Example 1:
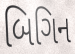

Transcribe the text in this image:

બિગિન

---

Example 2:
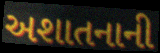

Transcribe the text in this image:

અશાતનાની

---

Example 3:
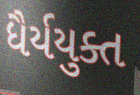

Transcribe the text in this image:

ધૈર્યયુક્ત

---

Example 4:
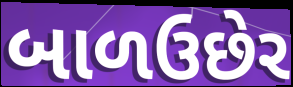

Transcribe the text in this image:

બાળઉછેર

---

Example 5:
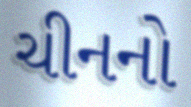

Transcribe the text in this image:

ચીનનો